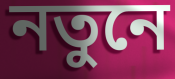
নতুনে